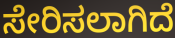
ಸೇರಿಸಲಾಗಿದೆ